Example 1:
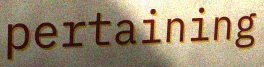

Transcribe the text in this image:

pertaining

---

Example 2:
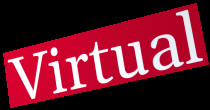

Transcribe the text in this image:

Virtual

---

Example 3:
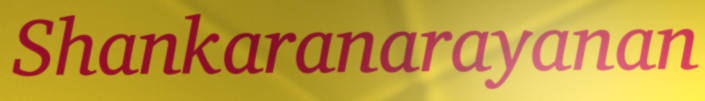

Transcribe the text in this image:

Shankaranarayanan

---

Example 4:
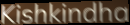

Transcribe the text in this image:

Kishkindha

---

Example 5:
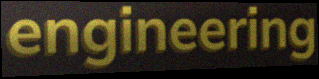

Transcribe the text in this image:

engineering